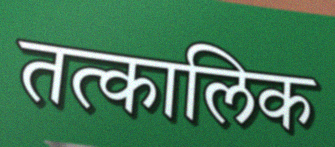
तत्कालिक